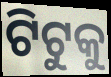
ଟିଟୁକୁ